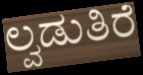
ಲ್ವಡುತಿರೆ